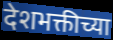
देशभक्तीच्या